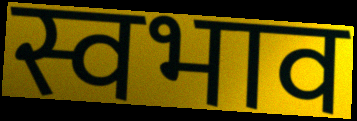
स्वभाव